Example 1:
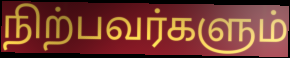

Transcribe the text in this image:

நிற்பவர்களும்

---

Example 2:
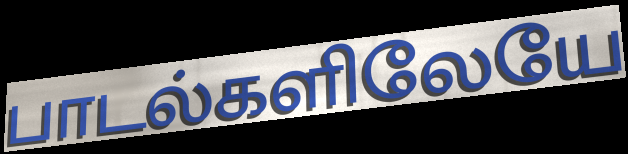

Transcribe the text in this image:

பாடல்களிலேயே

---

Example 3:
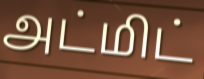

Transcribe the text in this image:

அட்மிட்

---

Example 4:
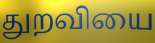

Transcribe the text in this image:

துறவியை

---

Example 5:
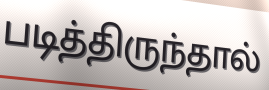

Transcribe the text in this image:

படித்திருந்தால்